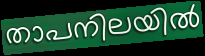
താപനിലയിൽ